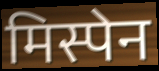
मिस्पेन